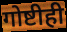
गोष्टीही